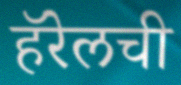
हॅरेलची